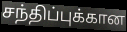
சந்திப்புக்கான